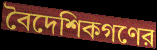
বৈদেশিকগণের